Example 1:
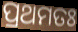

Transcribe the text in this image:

ପ୍ରଥମତଃ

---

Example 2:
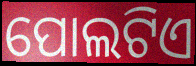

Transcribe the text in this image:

ପୋଲଟିଏ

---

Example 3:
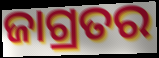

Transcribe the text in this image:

ଜାଗ୍ରତର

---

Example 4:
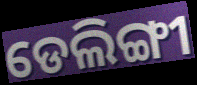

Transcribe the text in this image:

ଡେଲିଙ୍ଗୀ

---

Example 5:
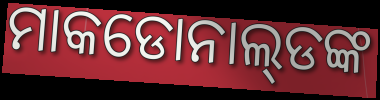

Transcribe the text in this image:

ମାକଡୋନାଲ୍‍ଡଙ୍କ